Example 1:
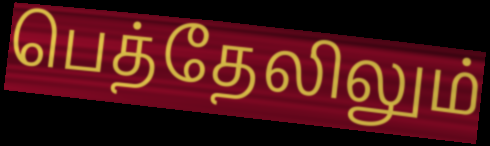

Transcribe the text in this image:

பெத்தேலிலும்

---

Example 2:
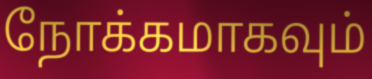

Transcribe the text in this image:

நோக்கமாகவும்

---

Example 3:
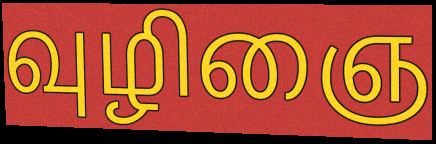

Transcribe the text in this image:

வுழிஞை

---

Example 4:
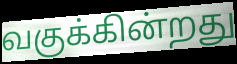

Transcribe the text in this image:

வகுக்கின்றது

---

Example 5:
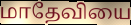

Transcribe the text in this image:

மாதேவியை